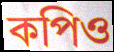
কপিও